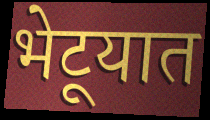
भेटूयात